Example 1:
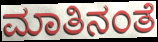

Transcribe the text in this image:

ಮಾತಿನಂತೆ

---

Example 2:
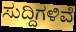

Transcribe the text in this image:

ಸುದ್ದಿಗಳಿವೆ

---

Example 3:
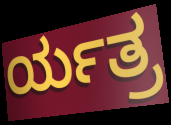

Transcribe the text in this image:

ರ್ಯತ್ರ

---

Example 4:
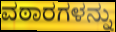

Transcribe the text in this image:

ವಠಾರಗಳನ್ನು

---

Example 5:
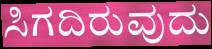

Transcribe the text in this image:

ಸಿಗದಿರುವುದು